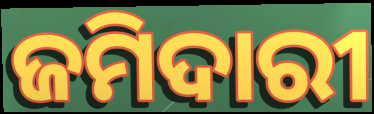
ଜମିଦାରୀ